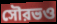
সৌরভও